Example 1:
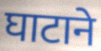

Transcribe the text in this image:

घाटाने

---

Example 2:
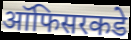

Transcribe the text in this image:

ऑफिसरकडे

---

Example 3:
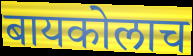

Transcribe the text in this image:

बायकोलाच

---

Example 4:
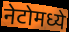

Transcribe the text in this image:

नेटोमध्ये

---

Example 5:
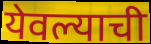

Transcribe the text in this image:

येवल्याची